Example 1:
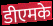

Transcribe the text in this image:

डीएमके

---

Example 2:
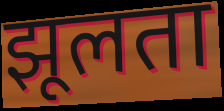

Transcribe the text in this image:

झूलता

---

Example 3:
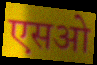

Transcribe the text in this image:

एसओ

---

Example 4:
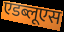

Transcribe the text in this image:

एडब्लूएस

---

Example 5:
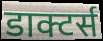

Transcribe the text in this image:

डाक्टर्स